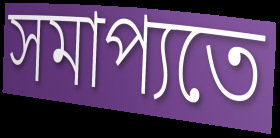
সমাপ্যতে